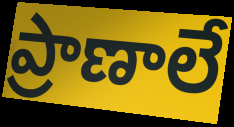
ప్రాణాలే